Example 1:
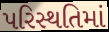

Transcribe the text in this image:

પરિસ્થતિમાં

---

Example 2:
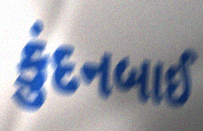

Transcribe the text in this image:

કુંદનબાઈ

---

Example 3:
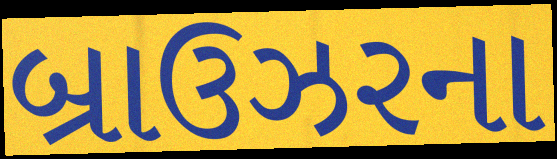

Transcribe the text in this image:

બ્રાઉઝરના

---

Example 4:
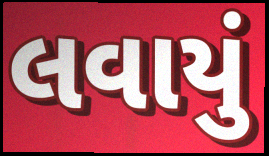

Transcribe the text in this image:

લવાયું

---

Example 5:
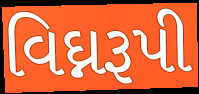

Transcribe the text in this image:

વિઘ્નરૂપી